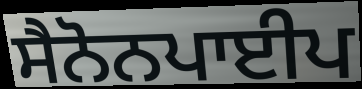
ਸੈਨੋਨਪਾਈਪ